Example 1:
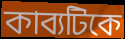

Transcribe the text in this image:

কাব্যটিকে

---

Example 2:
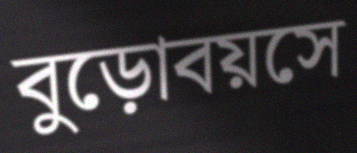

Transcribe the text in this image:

বুড়োবয়সে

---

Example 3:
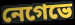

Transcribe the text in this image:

নেগেভে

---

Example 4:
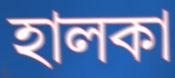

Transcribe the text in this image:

হালকা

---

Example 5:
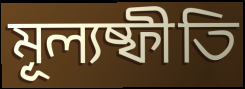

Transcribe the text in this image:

মূল্যষ্ফীতি